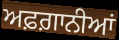
ਅਫ਼ਗ਼ਾਨੀਆਂ